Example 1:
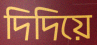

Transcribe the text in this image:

দিদিয়ে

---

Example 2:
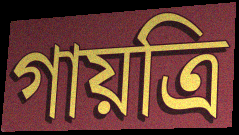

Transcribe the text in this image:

গায়ত্রি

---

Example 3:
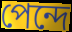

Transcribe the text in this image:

পেন্দে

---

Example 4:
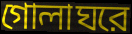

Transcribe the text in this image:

গোলাঘরে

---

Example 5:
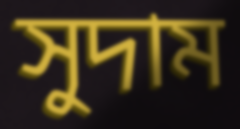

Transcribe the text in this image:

সুদাম